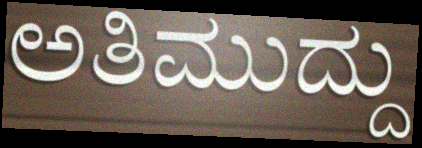
ಅತಿಮುದ್ದು